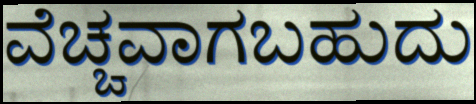
ವೆಚ್ಚವಾಗಬಹುದು